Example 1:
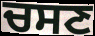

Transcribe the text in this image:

ਚਸਣ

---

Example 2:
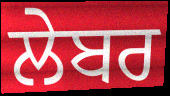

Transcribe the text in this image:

ਲੇਬਰ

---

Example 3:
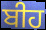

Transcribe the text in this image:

ਬੀਹ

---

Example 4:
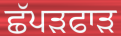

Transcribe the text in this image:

ਛੱਪੜਫਾੜ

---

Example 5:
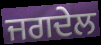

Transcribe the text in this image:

ਜਗਦੇਲ